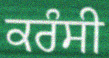
ਕਰੰਸੀ